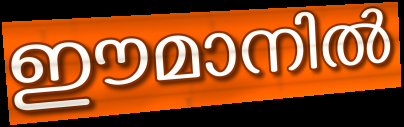
ഈമാനിൽ